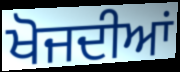
ਖੋਜਦੀਆਂ